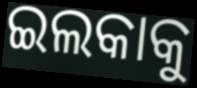
ଇଲକାକୁ